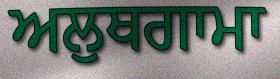
ਅਲੁਥਗਾਮਾ